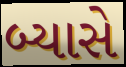
બ્યાસે